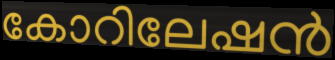
കോറിലേഷൻ